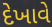
દેખાવે